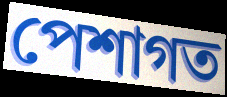
পেশাগত